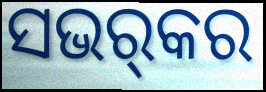
ସଭର୍‌କର